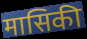
मासिकी